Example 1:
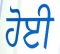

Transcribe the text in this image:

ਹੋਈ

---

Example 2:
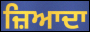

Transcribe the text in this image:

ਜ਼ਿਆਦਾ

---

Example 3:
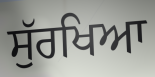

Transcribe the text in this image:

ਸੁੱਰਖਿਆ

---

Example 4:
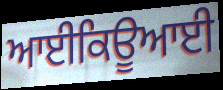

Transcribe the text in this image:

ਆਈਕਿਊਆਈ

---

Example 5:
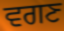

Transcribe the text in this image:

ਵਗਣ